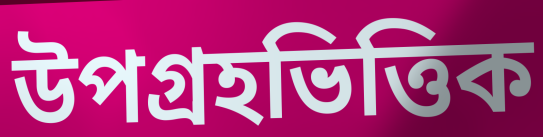
উপগ্রহভিত্তিক